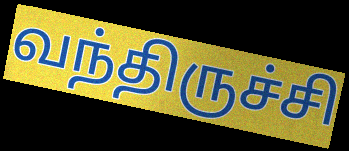
வந்திருச்சி